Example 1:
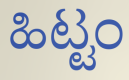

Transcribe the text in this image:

ಹಿಟ್ಟಂ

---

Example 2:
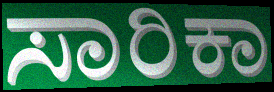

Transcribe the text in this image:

ಸಾರಿಕಾ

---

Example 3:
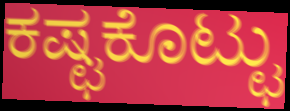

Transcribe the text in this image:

ಕಷ್ಟಕೊಟ್ಟು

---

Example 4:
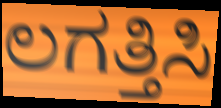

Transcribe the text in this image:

ಲಗತ್ತಿಸಿ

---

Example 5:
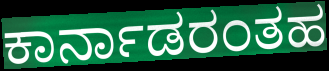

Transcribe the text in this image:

ಕಾರ್ನಾಡರಂತಹ